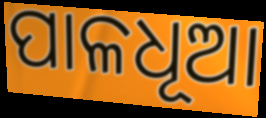
ପାଳଧୂଆ